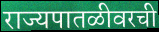
राज्यपातळीवरची